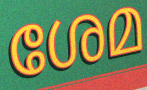
ശേമ